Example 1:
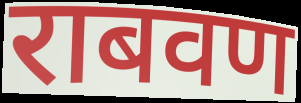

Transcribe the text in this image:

राबवण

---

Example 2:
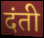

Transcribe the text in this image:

दंती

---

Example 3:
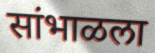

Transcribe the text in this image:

सांभाळला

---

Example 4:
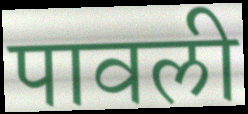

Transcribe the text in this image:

पावली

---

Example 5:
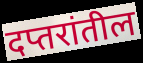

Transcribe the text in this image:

दप्तरांतील